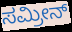
ಸಮ್ರೀನ್